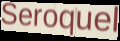
Seroquel